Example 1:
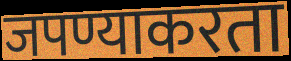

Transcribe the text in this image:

जपण्याकरता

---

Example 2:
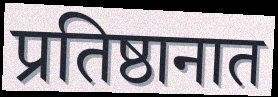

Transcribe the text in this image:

प्रतिष्ठानात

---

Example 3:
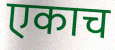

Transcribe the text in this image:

एकाच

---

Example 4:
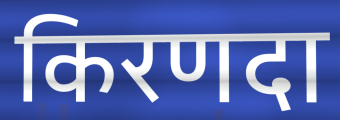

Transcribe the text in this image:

किरणदा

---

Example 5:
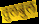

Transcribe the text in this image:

तुलबुल